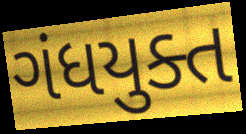
ગંધયુક્ત